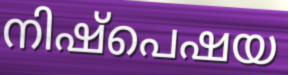
നിഷ്പെഷയ